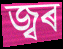
জ্বৰ